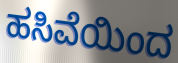
ಹಸಿವೆಯಿಂದ